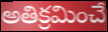
అతిక్రమించే